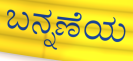
ಬನ್ನಣೆಯ